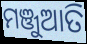
ମଞ୍ଜୁଆତି